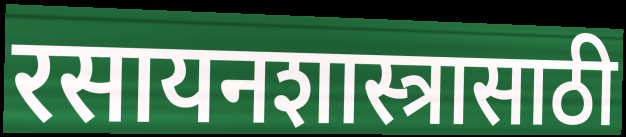
रसायनशास्त्रासाठी